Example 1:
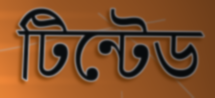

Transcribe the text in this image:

টিন্টেড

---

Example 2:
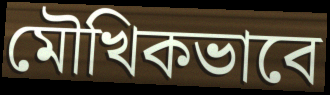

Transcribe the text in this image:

মৌখিকভাবে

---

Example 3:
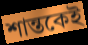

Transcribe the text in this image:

শান্তকেই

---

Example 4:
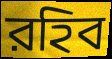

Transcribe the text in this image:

রহিব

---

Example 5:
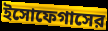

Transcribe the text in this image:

ইসোফেগাসের